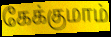
கேக்குமாம்